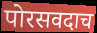
पोरसवदाच